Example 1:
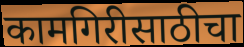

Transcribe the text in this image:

कामगिरीसाठीचा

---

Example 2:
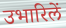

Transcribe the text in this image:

उभारिलें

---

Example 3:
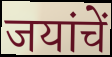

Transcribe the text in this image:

जयांचें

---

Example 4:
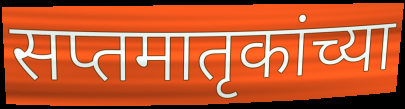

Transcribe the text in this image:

सप्तमातृकांच्या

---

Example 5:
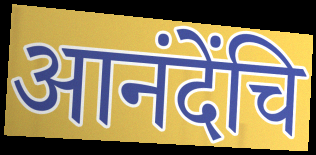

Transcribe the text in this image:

आनंदेंचि